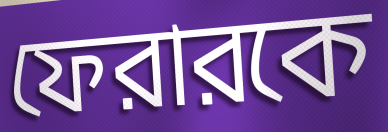
ফেরারকে